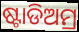
ଷ୍ଟାଡିଅମ୍ର